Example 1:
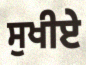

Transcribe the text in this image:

ਸੁਖੀਏ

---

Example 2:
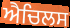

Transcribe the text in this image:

ਐਚਿਲਸ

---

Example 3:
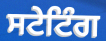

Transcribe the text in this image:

ਸਟੇਟਿੰਗ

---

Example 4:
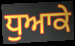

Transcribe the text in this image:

ਧੁਆਕੇ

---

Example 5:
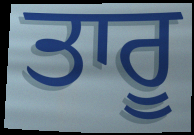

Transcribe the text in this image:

ਤਾਰੂ